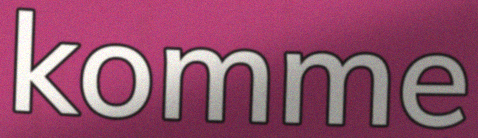
komme